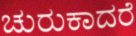
ಚುರುಕಾದರೆ